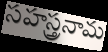
సహస్త్రనామ